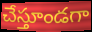
చేస్తూండగా